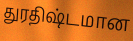
துரதிஷ்டமான